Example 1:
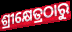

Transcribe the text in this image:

ଶ୍ରୀକ୍ଷେତ୍ରଠାରୁ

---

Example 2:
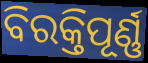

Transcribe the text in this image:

ବିରକ୍ତିପୂର୍ଣ୍ଣ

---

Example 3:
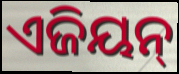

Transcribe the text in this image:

ଏଜିୟନ୍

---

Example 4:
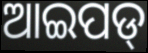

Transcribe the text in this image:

ଆଇପଡ୍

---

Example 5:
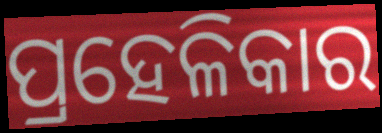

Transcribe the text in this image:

ପ୍ରହେଳିକାର